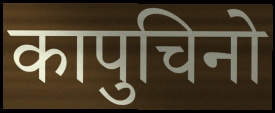
कापुचिनो